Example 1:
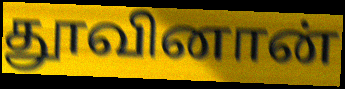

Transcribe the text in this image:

தூவினான்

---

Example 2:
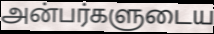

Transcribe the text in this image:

அன்பர்களுடைய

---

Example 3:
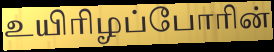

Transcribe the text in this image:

உயிரிழப்போரின்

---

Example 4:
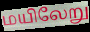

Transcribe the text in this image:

மயிலேறு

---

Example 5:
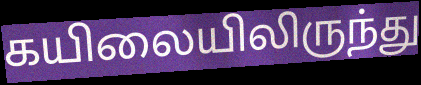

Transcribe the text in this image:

கயிலையிலிருந்து